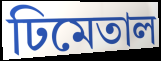
ঢিমেতাল